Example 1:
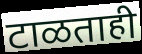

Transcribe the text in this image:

टाळताही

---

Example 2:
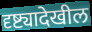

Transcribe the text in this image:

दृष्ट्यादेखील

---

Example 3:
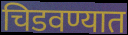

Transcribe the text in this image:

चिडवण्यात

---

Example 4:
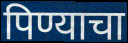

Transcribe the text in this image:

पिण्याचा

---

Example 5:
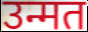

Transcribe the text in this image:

उन्मत